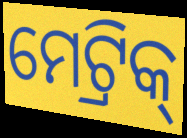
ମେଟ୍ରିକ୍